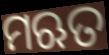
ମଋତ